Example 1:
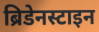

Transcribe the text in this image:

ब्रिडेनस्टाइन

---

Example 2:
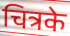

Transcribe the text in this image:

चित्रके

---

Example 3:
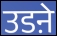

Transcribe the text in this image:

उडऩे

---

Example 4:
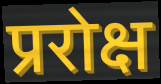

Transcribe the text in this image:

प्ररोक्ष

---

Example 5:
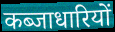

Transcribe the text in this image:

कब्जाधारियों